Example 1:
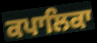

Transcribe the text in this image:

ਕਪਾਲਿਕਾ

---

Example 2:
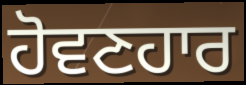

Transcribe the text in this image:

ਹੋਵਣਹਾਰ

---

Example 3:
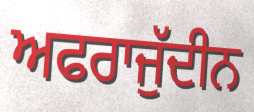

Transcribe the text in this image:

ਅਫਰਾਜੁੱਦੀਨ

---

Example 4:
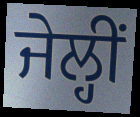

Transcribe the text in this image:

ਜੇਲ੍ਹੀਂ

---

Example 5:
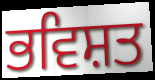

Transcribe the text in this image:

ਭਵਿਸ਼ਤ